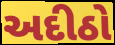
અદીઠો